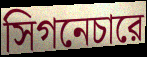
সিগনেচারে